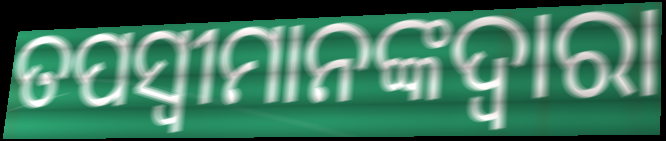
ତପସ୍ୱୀମାନଙ୍କଦ୍ୱାରା